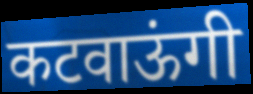
कटवाऊंगी